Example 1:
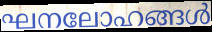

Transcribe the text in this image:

ഘനലോഹങ്ങൾ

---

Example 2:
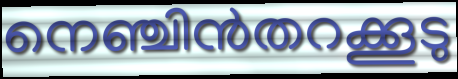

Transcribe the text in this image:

നെഞ്ചിൻതറക്കൂടു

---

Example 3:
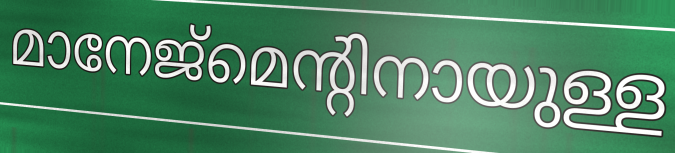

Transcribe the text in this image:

മാനേജ്മെന്റിനായുള്ള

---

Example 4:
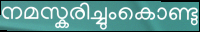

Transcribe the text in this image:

നമസ്കരിച്ചുംകൊണ്ടു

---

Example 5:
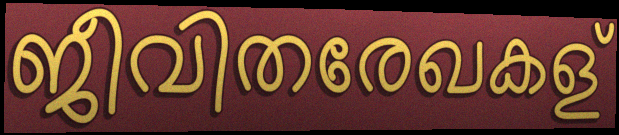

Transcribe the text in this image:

ജീവിതരേഖകള്